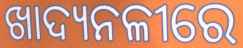
ଖାଦ୍ୟନଳୀରେ